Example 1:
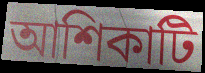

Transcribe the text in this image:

আশিকাটি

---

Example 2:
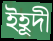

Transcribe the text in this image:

ইহূদী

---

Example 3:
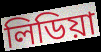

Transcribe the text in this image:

লিডিয়া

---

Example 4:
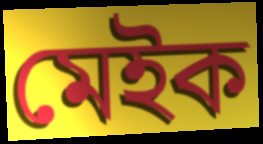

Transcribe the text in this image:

মেইক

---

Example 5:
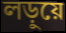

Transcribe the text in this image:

লড়ুয়ে